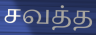
சவத்த